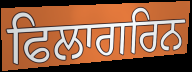
ਫਿਲਾਗਰਿਨ